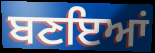
ਬਣਇਆਂ